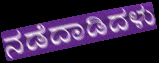
ನಡೆದಾಡಿದಳು